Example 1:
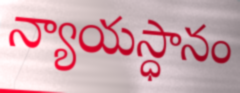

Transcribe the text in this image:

న్యాయస్ధానం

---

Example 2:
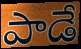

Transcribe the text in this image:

పాడే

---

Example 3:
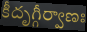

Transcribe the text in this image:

కీదృగ్గీర్వాణః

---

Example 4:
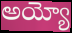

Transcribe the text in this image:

అయ్యో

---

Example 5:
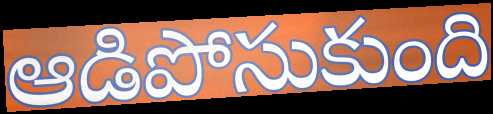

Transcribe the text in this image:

ఆడిపోసుకుంది